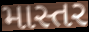
માસ્તર